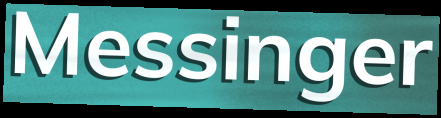
Messinger